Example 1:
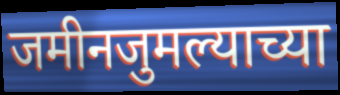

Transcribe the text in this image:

जमीनजुमल्याच्या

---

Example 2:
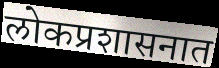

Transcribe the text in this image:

लोकप्रशासनात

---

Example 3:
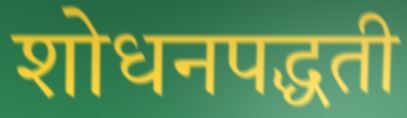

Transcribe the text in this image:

शोधनपद्धती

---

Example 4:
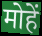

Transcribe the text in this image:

मोहें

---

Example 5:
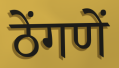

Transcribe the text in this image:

ठेंगणें